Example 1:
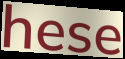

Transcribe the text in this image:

hese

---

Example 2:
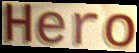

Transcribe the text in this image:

Hero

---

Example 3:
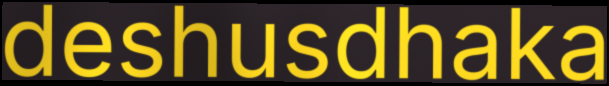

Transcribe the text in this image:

deshusdhaka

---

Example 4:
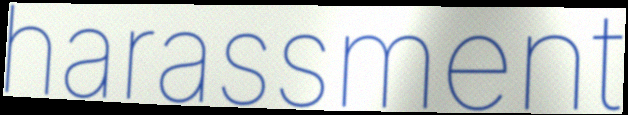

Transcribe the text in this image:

harassment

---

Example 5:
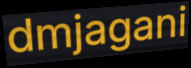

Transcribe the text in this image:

dmjagani